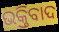
ଭକ୍ତିବାଦ